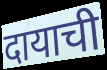
दायाची